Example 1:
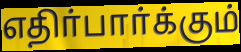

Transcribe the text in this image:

எதிர்பார்க்கும்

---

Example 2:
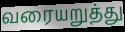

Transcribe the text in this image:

வரையறுத்து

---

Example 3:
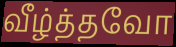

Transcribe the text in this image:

வீழ்த்தவோ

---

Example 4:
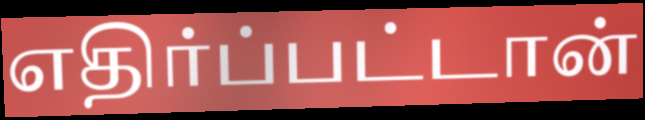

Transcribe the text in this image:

எதிர்ப்பட்டான்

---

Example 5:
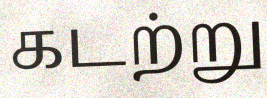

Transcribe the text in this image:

கடற்று